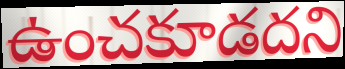
ఉంచకూడదని